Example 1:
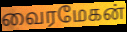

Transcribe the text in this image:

வைரமேகன்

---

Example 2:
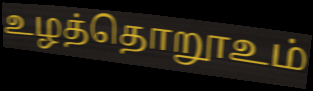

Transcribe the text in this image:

உழத்தொறூஉம்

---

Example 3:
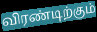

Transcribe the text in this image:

விரண்டிற்கும்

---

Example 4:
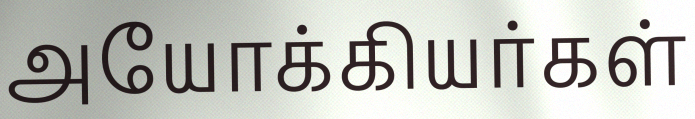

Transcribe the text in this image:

அயோக்கியர்கள்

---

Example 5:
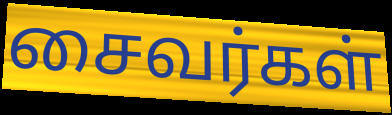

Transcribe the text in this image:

சைவர்கள்